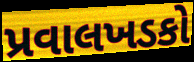
પ્રવાલખડકો